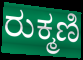
ರುಕ್ಮಣಿ